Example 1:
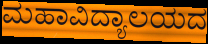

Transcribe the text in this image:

ಮಹಾವಿದ್ಯಾಲಯದ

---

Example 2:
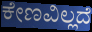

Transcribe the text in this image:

ಕೇಣವಿಲ್ಲದೆ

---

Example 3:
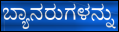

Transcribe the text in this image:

ಬ್ಯಾನರುಗಳನ್ನು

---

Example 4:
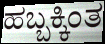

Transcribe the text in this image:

ಹಬ್ಬಕ್ಕಿಂತ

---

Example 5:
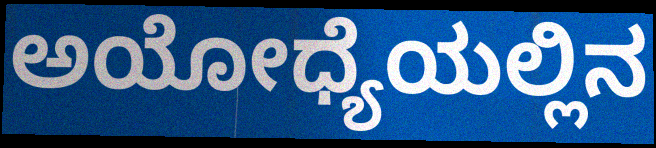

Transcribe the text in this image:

ಅಯೋಧ್ಯೆಯಲ್ಲಿನ